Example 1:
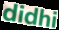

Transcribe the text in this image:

didhi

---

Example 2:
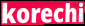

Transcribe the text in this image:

korechi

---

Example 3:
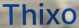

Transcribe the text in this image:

Thixo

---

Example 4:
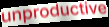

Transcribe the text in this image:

unproductive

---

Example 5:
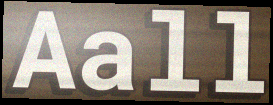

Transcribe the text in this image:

Aall